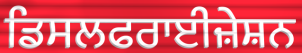
ਡਿਸਲਫਰਾਈਜ਼ੇਸ਼ਨ